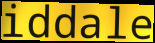
iddale